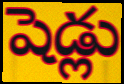
షెడ్లు